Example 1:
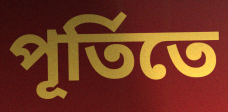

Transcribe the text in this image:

পূর্তিতে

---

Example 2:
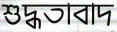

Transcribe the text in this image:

শুদ্ধতাবাদ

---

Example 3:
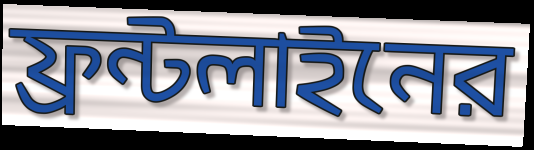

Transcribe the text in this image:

ফ্রন্টলাইনের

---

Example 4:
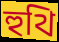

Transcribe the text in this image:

হুথি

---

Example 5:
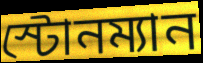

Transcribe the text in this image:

স্টোনম্যান